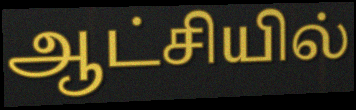
ஆட்சியில்